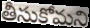
తీసుకోమని